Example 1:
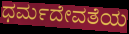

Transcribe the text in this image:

ಧರ್ಮದೇವತೆಯ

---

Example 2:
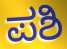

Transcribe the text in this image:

ಪಶಿ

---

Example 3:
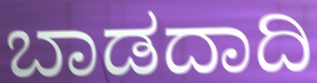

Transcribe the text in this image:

ಬಾಡದಾದಿ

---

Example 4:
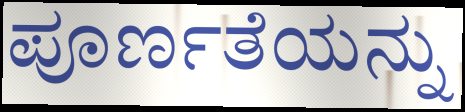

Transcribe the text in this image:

ಪೂರ್ಣತೆಯನ್ನು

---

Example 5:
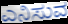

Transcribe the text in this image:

ಎನಿಸುವ